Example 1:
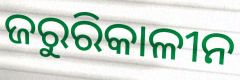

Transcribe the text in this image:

ଜରୁରିକାଳୀନ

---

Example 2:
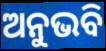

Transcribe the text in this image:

ଅନୁଭବି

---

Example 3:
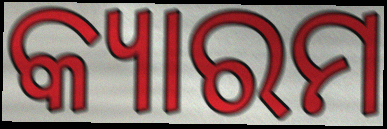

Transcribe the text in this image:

କ୍ୟାରମ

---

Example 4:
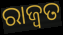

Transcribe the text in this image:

ରାଜ୍ୱତ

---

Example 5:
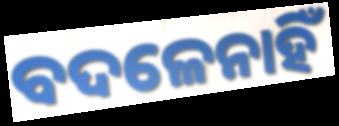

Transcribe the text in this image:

ବଦଳେନାହିଁ